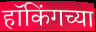
हॉकिंगच्या